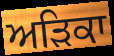
ਅੜਿਕਾ